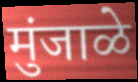
मुंजाळे